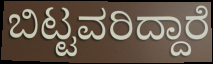
ಬಿಟ್ಟವರಿದ್ದಾರೆ